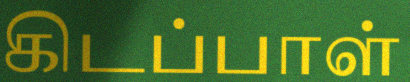
கிடப்பாள்